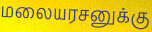
மலையரசனுக்கு